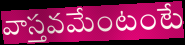
వాస్తవమేంటంటే